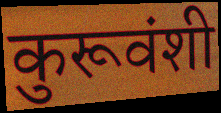
कुरूवंशी